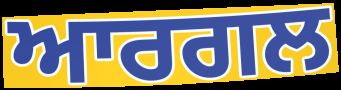
ਆਰਗਲ